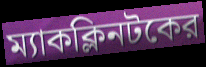
ম্যাকক্লিনটকের